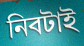
নিবটাই